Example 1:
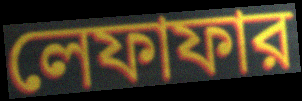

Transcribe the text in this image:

লেফাফার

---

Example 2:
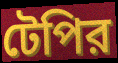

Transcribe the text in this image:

টেপির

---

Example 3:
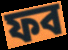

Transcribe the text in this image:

ফব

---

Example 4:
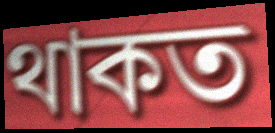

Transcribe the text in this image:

থাকত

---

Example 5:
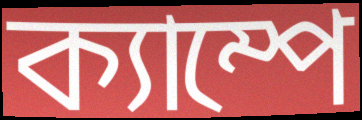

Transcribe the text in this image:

ক্যাম্পে